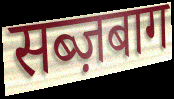
सब्ज़बाग